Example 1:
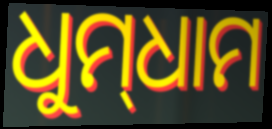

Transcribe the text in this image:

ଧୁମ୍‌ଧାମ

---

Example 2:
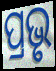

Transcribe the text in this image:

ପ୍ରଭୃ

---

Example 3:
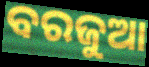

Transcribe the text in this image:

ବରଜୁଆ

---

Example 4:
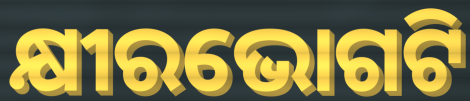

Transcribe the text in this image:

କ୍ଷୀରଭୋଗଟି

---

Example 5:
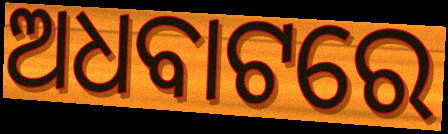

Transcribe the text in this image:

ଅଧବାଟରେ